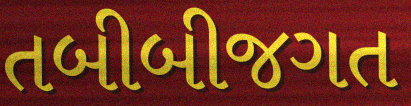
તબીબીજગત